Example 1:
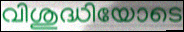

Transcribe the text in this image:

വിശുദ്ധിയോടെ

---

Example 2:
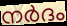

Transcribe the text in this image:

നർദം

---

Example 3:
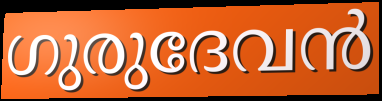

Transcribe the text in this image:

ഗുരുദേവൻ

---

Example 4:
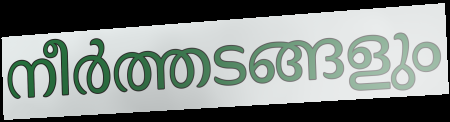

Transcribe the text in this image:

നീർത്തടങ്ങളും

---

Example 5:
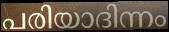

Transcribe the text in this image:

പരിയാദിന്നം